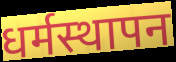
धर्मस्थापन